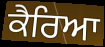
ਕੈਰਿਆ